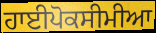
ਹਾਈਪੋਕਸੀਮੀਆ